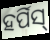
ହର୍ପିସ୍